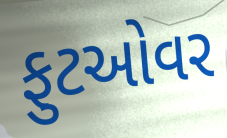
ફુટઓવર